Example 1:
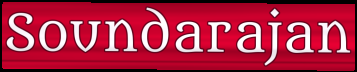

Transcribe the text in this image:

Soundarajan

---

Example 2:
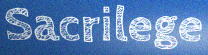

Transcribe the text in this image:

Sacrilege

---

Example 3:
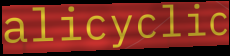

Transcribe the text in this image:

alicyclic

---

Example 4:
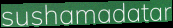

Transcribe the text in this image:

sushamadatar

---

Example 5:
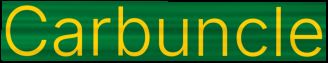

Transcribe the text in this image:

Carbuncle